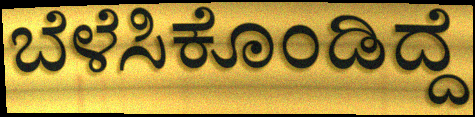
ಬೆಳೆಸಿಕೊಂಡಿದ್ದೆ